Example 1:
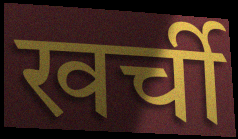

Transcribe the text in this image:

खर्ची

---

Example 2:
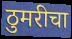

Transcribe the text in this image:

ठुमरीचा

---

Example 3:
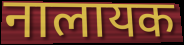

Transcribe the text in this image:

नालायक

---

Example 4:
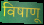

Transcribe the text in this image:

विषाणू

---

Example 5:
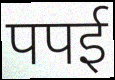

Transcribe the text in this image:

पपई